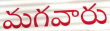
మగవారు